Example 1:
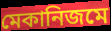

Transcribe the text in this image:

মেকানিজমে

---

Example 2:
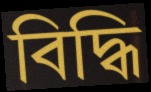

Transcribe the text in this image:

বিদ্ধি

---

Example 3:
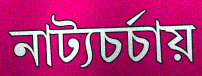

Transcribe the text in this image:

নাট্যচর্চায়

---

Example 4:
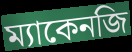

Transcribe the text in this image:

ম্যাকেনজি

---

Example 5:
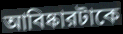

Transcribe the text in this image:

আবিষ্কারটাকে